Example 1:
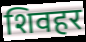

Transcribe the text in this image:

शिवहर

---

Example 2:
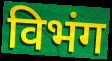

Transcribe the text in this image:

विभंग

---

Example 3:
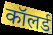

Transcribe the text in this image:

कॉलर्ड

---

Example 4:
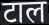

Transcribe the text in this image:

टाल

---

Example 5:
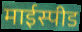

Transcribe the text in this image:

माईस्पीड